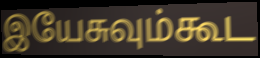
இயேசுவும்கூட